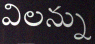
విలన్ను